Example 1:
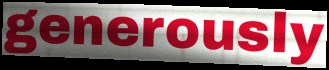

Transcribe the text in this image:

generously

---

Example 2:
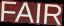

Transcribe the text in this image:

FAIR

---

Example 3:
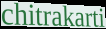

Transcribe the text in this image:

chitrakarti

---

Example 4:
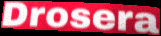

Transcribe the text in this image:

Drosera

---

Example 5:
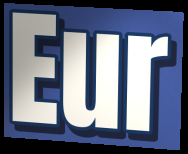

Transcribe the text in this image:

Eur